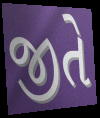
જીતે